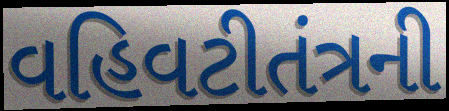
વહિવટીતંત્રની